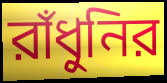
রাঁধুনির